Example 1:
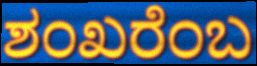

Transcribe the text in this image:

ಶಂಖರೆಂಬ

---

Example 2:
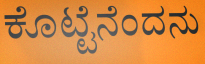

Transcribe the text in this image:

ಕೊಟ್ಟೆನೆಂದನು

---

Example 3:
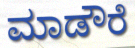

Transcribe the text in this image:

ಮಾಡೌರೆ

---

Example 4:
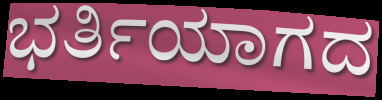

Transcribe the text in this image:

ಭರ್ತಿಯಾಗದ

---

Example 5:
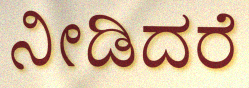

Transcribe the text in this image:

ನೀಡಿದರೆ